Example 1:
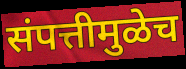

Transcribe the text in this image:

संपत्तीमुळेच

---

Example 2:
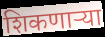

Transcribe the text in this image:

शिकणाऱ्या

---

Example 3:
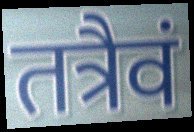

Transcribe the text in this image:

तत्रैवं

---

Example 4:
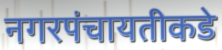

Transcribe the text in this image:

नगरपंचायतीकडे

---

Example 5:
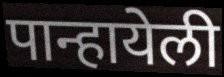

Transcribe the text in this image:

पान्हायेली